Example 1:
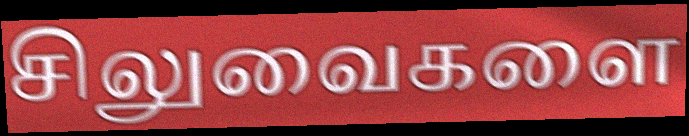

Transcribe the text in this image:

சிலுவைகளை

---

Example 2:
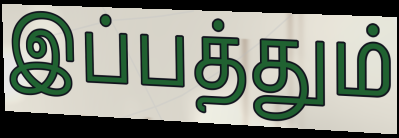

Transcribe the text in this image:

இப்பத்தும்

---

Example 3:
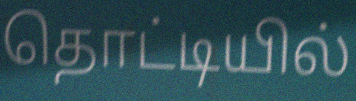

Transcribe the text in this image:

தொட்டியில்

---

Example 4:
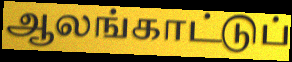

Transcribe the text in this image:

ஆலங்காட்டுப்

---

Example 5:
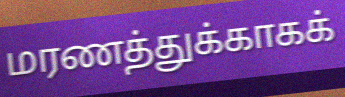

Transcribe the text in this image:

மரணத்துக்காகக்